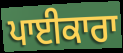
ਪਾਈਕਾਰਾ